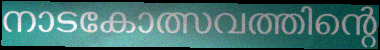
നാടകോത്സവത്തിന്റെ